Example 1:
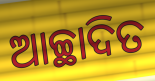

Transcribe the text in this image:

ଆଚ୍ଛାଦିତ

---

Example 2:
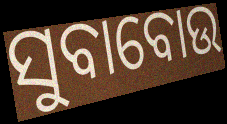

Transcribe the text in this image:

ସୁବାବୋଉ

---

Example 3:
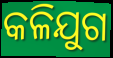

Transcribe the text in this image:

କଳିଯୁଗ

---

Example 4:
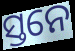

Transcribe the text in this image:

ସ୍ତନେ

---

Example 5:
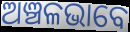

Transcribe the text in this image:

ଅଞ୍ଚଳଭାବେ